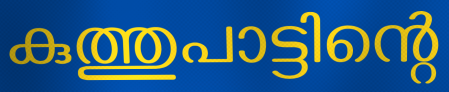
കുത്തുപാട്ടിന്റെ